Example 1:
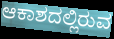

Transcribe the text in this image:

ಆಕಾಶದಲ್ಲಿರುವ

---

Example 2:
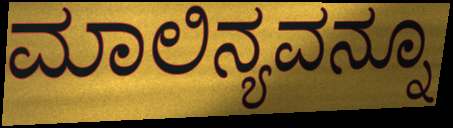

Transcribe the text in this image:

ಮಾಲಿನ್ಯವನ್ನೂ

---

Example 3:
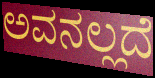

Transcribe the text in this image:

ಅವನಲ್ಲದೆ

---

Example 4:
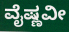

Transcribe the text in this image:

ವೈಷ್ಣವೀ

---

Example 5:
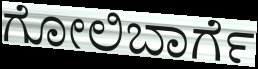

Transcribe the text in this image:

ಗೋಲಿಬಾರ್ಗೆ